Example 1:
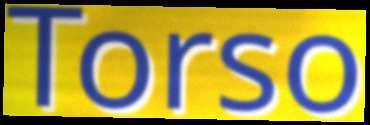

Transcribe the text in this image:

Torso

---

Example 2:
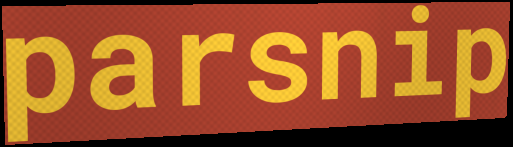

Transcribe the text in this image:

parsnip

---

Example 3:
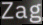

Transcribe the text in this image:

Zag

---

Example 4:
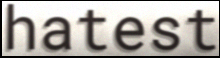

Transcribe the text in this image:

hatest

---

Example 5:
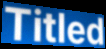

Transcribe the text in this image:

Titled